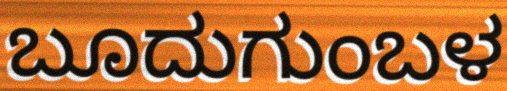
ಬೂದುಗುಂಬಳ